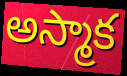
అస్మాక